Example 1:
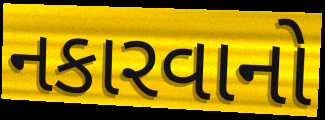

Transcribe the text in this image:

નકારવાનો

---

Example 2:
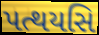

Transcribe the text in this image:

પત્થયસિ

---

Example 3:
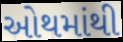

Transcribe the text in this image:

ઓથમાંથી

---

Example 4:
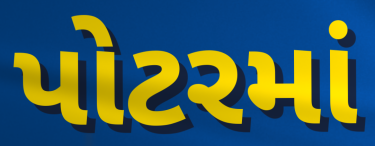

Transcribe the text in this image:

પોટરમાં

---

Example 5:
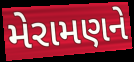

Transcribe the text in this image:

મેરામણને